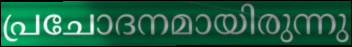
പ്രചോദനമായിരുന്നു